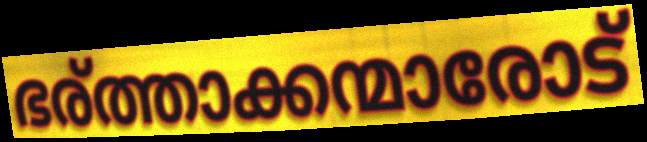
ഭര്ത്താക്കന്മാരോട്